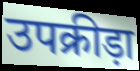
उपक्रीड़ा